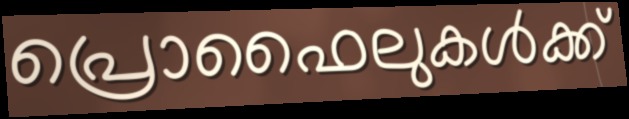
പ്രൊഫൈലുകൾക്ക്